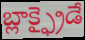
బ్లాక్ఫ్రైడే